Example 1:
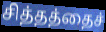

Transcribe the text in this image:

சித்தத்தைச்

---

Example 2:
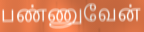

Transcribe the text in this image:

பண்ணுவேன்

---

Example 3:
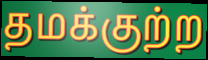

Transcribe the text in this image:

தமக்குற்ற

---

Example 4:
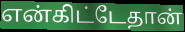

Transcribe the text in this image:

என்கிட்டேதான்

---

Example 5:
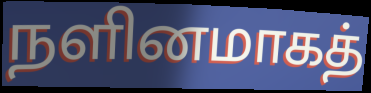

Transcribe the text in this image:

நளினமாகத்